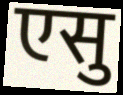
एसु